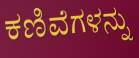
ಕಣಿವೆಗಳನ್ನು